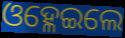
ଓହ୍ଳେଇଲେ